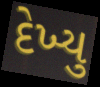
દેખ્યુ